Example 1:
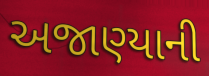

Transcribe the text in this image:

અજાણ્યાની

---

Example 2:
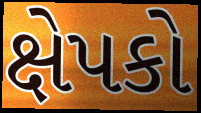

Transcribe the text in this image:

ક્ષેપકો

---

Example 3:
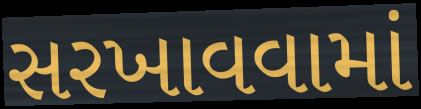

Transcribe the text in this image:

સરખાવવામાં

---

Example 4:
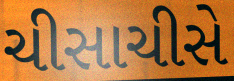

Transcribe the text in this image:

ચીસાચીસે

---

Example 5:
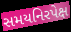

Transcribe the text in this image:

સમયનિરપેક્ષ